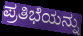
ಪ್ರತಿಭೆಯನ್ನು